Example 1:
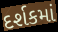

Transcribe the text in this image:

દર્શકમાં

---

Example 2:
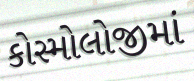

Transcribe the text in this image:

કોસ્મોલોજીમાં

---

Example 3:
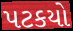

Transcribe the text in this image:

પટકયો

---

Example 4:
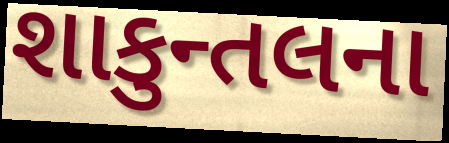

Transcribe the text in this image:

શાકુન્તલના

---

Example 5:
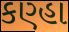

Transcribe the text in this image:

કણ્હા